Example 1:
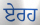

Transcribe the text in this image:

ਏਰਹ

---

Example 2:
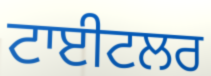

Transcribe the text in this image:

ਟਾਈਟਲਰ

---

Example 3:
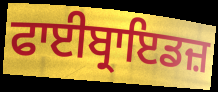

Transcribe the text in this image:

ਫਾਈਬ੍ਰਾਇਡਜ਼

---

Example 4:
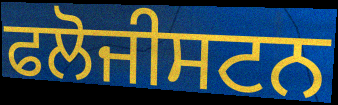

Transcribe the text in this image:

ਫਲੋਜੀਸਟਨ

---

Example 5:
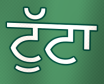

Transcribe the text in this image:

ਟੁੱਟਾ